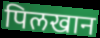
पिलखान